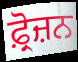
ਫ਼੍ਰੋਜ਼ਨ